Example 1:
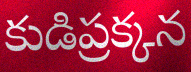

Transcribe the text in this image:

కుడిప్రక్కన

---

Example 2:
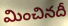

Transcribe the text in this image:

మించినదీ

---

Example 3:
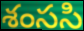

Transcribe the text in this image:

శంససి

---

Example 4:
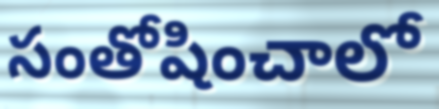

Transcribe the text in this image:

సంతోషించాలో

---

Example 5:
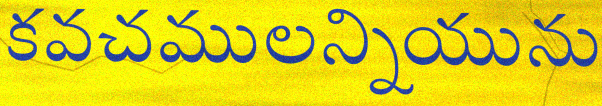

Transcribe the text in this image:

కవచములన్నియును